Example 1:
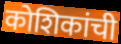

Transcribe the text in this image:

कोशिकांची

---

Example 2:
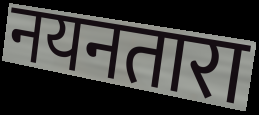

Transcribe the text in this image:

नयनतारा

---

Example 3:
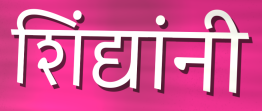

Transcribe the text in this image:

शिंद्यांनी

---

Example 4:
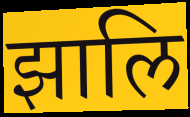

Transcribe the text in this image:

झालि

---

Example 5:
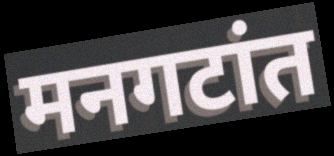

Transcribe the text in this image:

मनगटांत